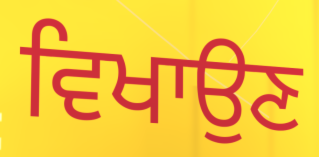
ਵਿਖਾਉਣ